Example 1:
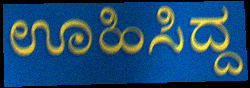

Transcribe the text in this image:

ಊಹಿಸಿದ್ದ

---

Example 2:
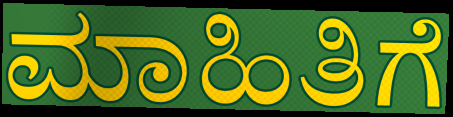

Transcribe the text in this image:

ಮಾಹಿತಿಗೆ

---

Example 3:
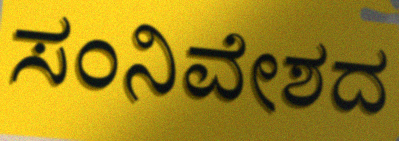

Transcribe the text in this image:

ಸಂನಿವೇಶದ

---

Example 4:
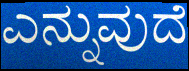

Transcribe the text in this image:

ಎನ್ನುವುದೆ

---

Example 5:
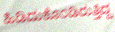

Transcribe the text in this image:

ಹಿಡಿದುಕೊಂಡಿರುತ್ತಿದ್ದ